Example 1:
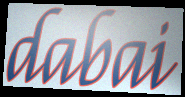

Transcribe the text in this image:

dabai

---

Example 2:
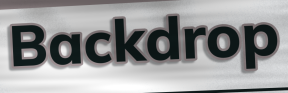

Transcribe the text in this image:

Backdrop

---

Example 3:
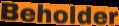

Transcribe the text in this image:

Beholder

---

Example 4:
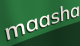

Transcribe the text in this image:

maasha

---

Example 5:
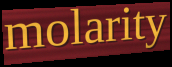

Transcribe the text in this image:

molarity